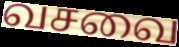
வசவை